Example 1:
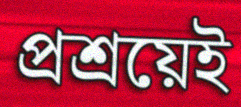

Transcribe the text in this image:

প্রশ্রয়েই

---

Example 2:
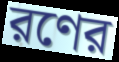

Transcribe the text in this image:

রণের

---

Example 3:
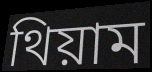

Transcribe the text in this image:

থিয়াম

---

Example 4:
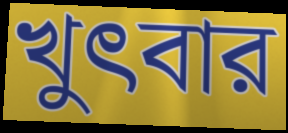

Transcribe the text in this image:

খুৎবার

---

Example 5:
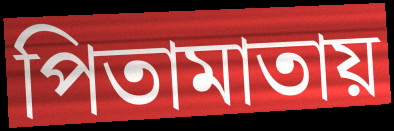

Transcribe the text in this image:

পিতামাতায়